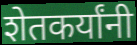
शेतकर्यांनी